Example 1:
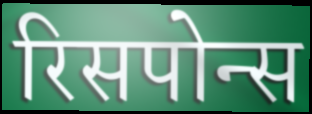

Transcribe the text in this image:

रिसपोन्स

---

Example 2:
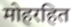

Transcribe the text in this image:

मोहरहित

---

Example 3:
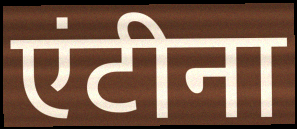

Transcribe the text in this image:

एंटीना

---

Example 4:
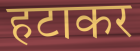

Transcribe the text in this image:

हटाकर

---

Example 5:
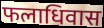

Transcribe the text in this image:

फलाधिवास